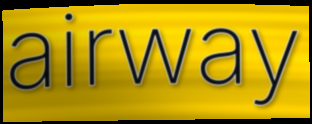
airway